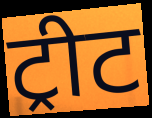
ट्रीट